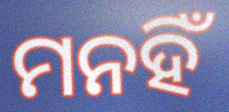
ମନହିଁ